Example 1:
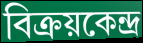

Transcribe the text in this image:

বিক্রয়কেন্দ্র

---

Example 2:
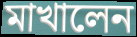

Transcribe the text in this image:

মাখালেন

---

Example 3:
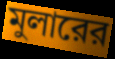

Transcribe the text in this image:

মুলারের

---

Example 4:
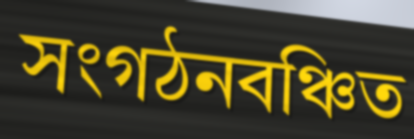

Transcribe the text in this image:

সংগঠনবঞ্চিত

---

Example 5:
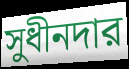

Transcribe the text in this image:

সুধীনদার